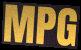
MPG